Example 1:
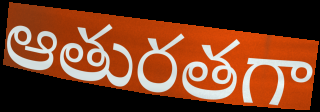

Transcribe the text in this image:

ఆతురతగా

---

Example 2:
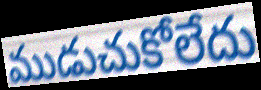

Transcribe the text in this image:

ముడుచుకోలేదు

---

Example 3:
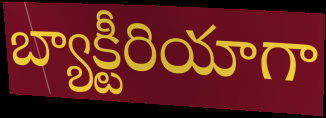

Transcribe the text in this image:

బ్యాక్టీరియాగా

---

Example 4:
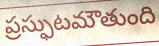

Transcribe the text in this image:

ప్రస్ఫుటమౌతుంది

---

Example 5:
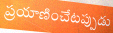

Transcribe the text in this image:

ప్రయాణించేటప్పుడు